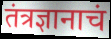
तंत्रज्ञानाचं